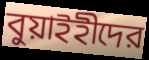
বুয়াইহীদের